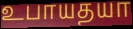
உபாயதயா